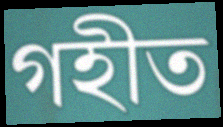
গহীত